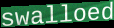
swalloed